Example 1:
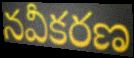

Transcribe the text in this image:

నవీకరణ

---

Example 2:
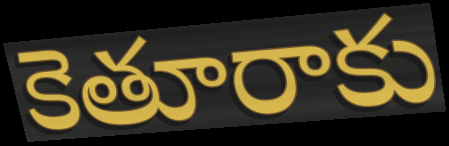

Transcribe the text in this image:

కెతూరాకు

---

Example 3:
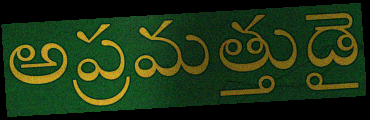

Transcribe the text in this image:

అప్రమత్తుడై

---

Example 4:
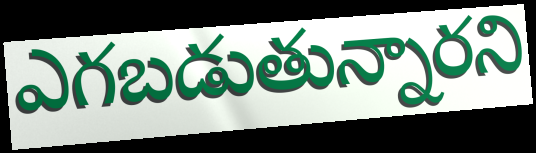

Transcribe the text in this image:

ఎగబడుతున్నారని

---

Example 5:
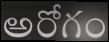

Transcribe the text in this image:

అరోగం